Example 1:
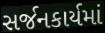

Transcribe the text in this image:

સર્જનકાર્યમાં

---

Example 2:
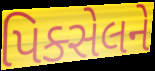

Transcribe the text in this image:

પિક્સેલને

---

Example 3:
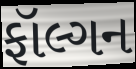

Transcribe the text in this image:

ફૉલ્ગન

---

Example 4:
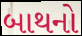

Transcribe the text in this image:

બાથનો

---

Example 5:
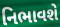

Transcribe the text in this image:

નિભાવશે